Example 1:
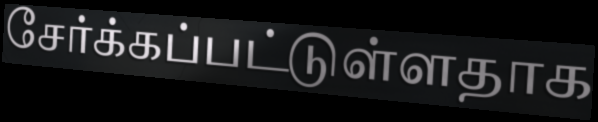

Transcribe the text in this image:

சேர்க்கப்பட்டுள்ளதாக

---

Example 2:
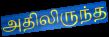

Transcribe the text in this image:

அதிலிருந்த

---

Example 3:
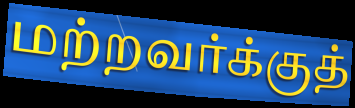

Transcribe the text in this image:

மற்றவர்க்குத்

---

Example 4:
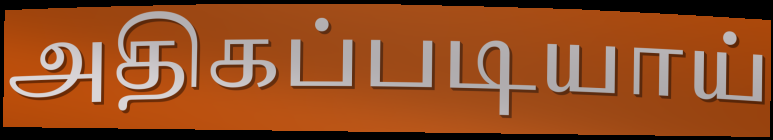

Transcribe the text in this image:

அதிகப்படியாய்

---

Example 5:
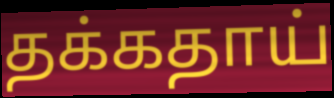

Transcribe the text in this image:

தக்கதாய்